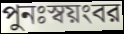
পুনঃস্বয়ংবর